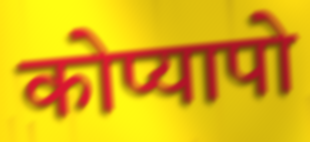
कोप्यापो